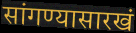
सांगण्यासारखं